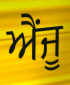
ਐਂਜੂ